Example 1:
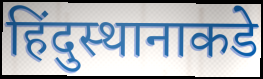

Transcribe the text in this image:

हिंदुस्थानाकडे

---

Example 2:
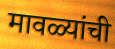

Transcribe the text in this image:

मावळ्यांची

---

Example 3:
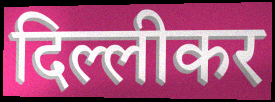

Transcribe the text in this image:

दिल्लीकर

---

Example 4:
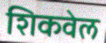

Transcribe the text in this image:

शिकवेल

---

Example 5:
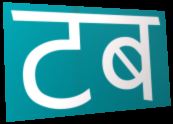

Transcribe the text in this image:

टब